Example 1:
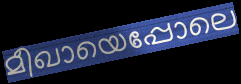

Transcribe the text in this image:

മീഖായെപ്പോലെ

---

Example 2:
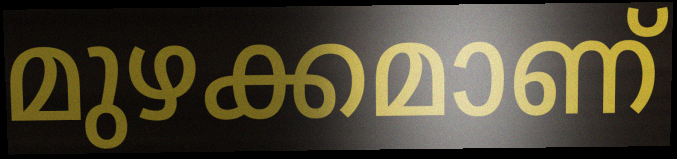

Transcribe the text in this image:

മുഴക്കമാണ്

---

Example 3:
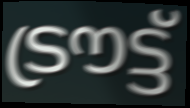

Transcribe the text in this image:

ട്രൗട്ട്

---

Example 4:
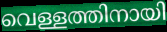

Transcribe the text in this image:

വെള്ളത്തിനായി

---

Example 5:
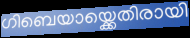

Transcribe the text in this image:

ഗിബെയായ്ക്കെതിരായി